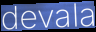
devala